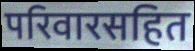
परिवारसहित